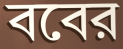
ববের